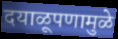
दयाळूपणामुळे